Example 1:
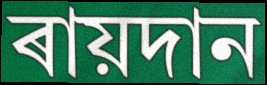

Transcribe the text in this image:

ৰায়দান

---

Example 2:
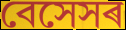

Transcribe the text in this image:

বেসেসৰ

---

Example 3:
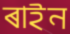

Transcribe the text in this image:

ৰাইন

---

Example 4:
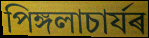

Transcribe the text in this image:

পিঙ্গলাচাৰ্যৰ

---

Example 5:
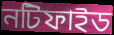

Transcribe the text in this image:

নটিফাইড